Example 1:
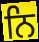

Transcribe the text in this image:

ਨਿ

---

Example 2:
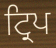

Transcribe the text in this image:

ਟ੍ਰਿਪ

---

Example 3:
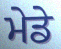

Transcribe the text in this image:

ਮੇਡੇ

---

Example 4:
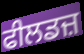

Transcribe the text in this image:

ਫੀਲਡਜ਼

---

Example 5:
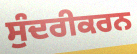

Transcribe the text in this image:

ਸੁੰਦਰੀਕਰਨ